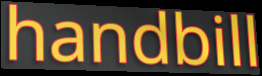
handbill